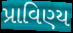
પ્રાવિણ્ય